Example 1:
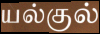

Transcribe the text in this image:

யல்குல்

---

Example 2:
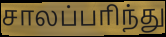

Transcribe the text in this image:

சாலப்பரிந்து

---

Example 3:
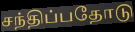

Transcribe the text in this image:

சந்திப்பதோடு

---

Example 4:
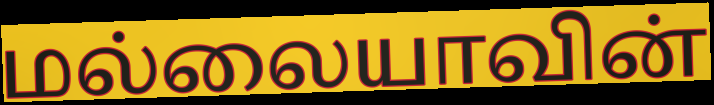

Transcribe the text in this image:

மல்லையாவின்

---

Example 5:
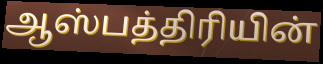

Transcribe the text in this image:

ஆஸ்பத்திரியின்